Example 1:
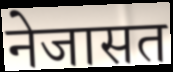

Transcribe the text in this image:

नेजासत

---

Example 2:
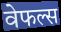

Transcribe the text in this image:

वेफल्स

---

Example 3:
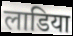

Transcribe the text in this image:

लाडिया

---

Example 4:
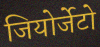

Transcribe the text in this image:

जियोर्जेटो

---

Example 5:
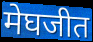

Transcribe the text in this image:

मेघजीत